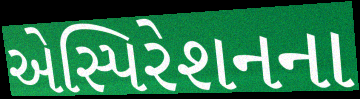
એસ્પિરેશનના